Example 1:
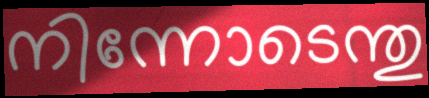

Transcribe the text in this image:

നിന്നോടെന്തു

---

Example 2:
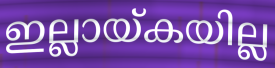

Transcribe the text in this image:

ഇല്ലായ്കയില്ല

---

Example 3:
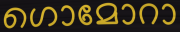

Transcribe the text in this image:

ഗൊമോറാ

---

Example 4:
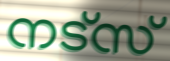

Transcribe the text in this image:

നട്സ്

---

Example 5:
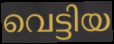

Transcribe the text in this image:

വെട്ടിയ